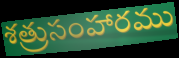
శత్రుసంహారము